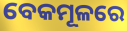
ବେକମୂଳରେ